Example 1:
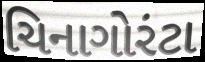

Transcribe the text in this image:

ચિનાગોરંટા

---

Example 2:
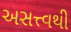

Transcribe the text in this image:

અસત્ત્વથી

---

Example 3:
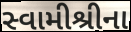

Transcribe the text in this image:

સ્વામીશ્રીના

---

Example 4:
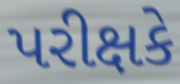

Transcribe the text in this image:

પરીક્ષકે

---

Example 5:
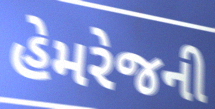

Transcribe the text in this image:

હેમરેજની